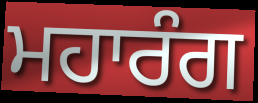
ਮਹਾਰੰਗ